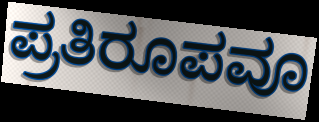
ಪ್ರತಿರೂಪವೂ